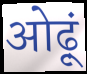
ओढ़ूं